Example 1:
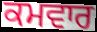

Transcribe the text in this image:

ਕਮਵਾਰ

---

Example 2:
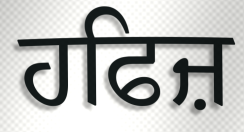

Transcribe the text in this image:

ਹਫਿਜ਼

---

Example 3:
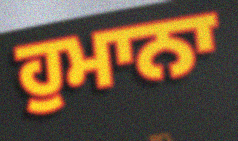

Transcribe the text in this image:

ਹੁਮਾਨਾ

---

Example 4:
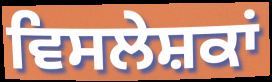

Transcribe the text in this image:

ਵਿਸਲੇਸ਼ਕਾਂ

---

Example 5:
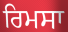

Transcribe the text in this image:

ਰਿਮਸਾ